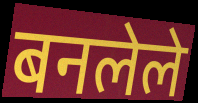
बनलेले